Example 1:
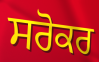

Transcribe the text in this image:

ਸਰੋਕਰ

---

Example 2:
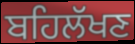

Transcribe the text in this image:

ਬਹਿਲੱਖਣ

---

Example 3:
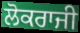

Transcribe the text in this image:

ਲੋਕਰਾਜੀ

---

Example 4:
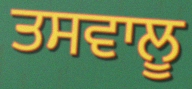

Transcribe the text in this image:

ਤਸਵਾਲੂ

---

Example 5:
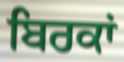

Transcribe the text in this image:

ਬਿਰਕਾਂ